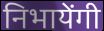
निभायेंगी